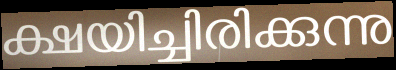
ക്ഷയിച്ചിരിക്കുന്നു